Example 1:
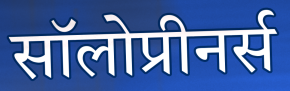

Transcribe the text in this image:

सॉलोप्रीनर्स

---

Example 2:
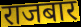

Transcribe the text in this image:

राजबार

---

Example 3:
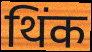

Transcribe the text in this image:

थिंक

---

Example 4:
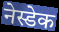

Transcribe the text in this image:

नेस्डेक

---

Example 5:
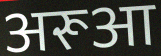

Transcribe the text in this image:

अरूआ